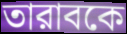
তারাবকে